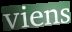
viens